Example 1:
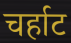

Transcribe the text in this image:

चर्हाट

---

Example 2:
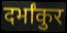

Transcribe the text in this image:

दर्भांकुर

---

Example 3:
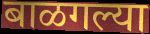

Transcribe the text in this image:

बाळगल्या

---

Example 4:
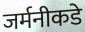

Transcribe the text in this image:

जर्मनीकडे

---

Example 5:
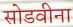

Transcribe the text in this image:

सोडवीना